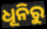
ଧୂନିରୁ